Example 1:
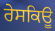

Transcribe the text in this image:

ਰੇਸਕਿਊ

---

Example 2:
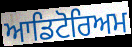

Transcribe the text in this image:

ਆਡਿਟੋਰਿਅਮ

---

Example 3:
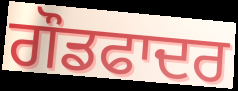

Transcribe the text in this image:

ਗੌਡਫਾਦਰ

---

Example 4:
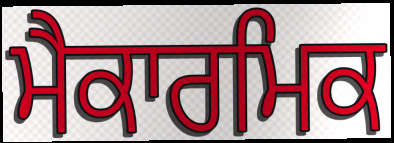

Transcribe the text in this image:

ਮੈਕਾਰਮਿਕ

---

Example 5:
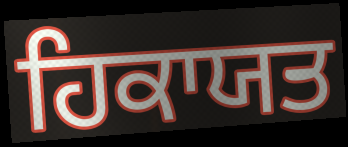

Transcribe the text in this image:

ਹਿਕਾਯਤ